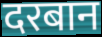
दरबान